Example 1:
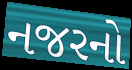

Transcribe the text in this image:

નજરનો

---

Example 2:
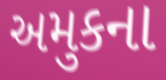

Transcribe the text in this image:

અમુકના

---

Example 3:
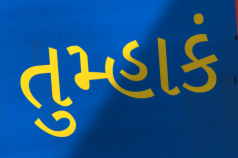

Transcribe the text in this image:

તુમ્હાકં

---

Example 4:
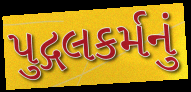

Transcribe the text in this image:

પુદ્ગલકર્મનું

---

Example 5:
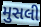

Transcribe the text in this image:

મુસલી